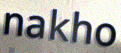
nakho